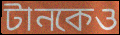
টানকেও